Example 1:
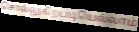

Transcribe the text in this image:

சொல்லுகிறபடியெல்லாம்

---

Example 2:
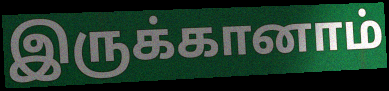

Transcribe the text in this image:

இருக்கானாம்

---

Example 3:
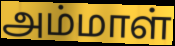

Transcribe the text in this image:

அம்மாள்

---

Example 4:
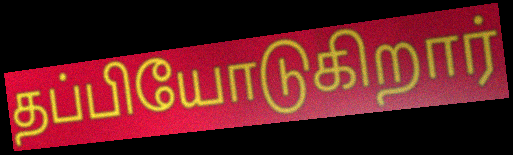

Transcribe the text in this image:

தப்பியோடுகிறார்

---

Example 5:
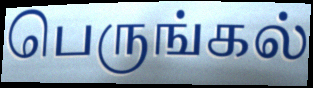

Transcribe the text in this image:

பெருங்கல்